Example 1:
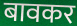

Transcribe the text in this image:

बावकर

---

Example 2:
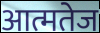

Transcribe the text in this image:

आत्मतेज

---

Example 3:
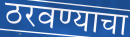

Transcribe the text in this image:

ठरवण्याचा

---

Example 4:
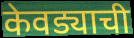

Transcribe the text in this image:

केवड्याची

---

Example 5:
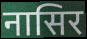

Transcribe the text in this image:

नासिर